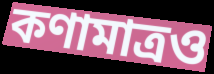
কণামাত্রও